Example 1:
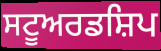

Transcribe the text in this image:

ਸਟੂਅਰਡਸ਼ਿਪ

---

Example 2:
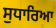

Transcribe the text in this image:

ਸੁਧਾਰਿਆ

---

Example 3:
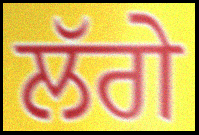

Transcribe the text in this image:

ਲੱਗੇ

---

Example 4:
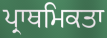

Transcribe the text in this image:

ਪ੍ਰਾਥਮਿਕਤਾ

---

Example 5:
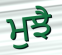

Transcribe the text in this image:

ਮੁਝੈ